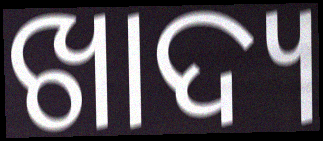
ଖାଦ୍ୟ